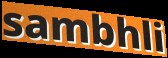
sambhli